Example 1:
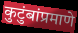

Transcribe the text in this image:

कुटुंबांप्रमाणे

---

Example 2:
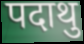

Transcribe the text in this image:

पदाथु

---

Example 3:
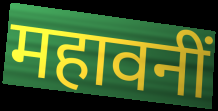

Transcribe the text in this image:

महावनीं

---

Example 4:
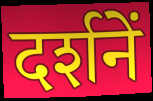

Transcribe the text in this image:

दर्शनें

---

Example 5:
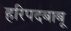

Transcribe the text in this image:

हरिपदबाबू